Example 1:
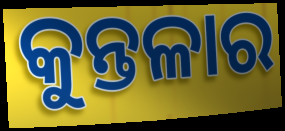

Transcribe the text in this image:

କୁନ୍ତଳାର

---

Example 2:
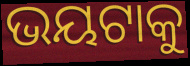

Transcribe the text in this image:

ଭୟଟାକୁ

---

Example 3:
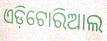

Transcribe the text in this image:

ଏଡ଼ିଟୋରିଆଲ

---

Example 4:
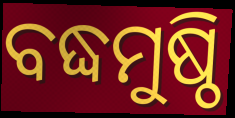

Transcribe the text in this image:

ବଦ୍ଧମୁଷ୍ଠି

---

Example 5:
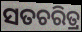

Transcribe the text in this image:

ସତଚରିତ୍ର